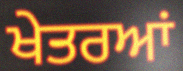
ਖੇਤਰਆਂ